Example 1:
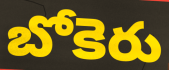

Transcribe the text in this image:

బోకెరు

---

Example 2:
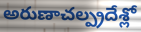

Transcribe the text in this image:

అరుణాచల్ప్రదేశ్లో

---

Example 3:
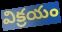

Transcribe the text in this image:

విక్రయం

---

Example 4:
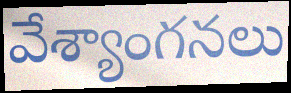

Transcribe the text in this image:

వేశ్యాంగనలు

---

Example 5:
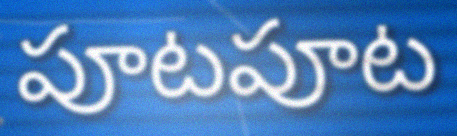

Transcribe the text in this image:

పూటపూట